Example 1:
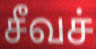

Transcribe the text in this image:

சீவச்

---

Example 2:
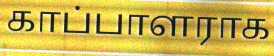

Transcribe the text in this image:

காப்பாளராக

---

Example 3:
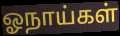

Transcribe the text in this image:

ஓநாய்கள்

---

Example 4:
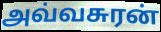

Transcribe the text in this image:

அவ்வசுரன்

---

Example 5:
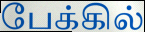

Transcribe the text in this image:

பேக்கில்